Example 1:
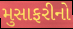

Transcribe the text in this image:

મુસાફરીનો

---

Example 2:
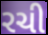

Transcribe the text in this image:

રચી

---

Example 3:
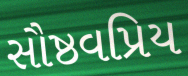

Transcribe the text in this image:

સૌષ્ઠવપ્રિય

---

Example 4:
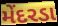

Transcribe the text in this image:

મેંદરડા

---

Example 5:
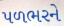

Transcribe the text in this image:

પળભરને